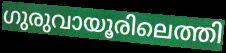
ഗുരുവായൂരിലെത്തി